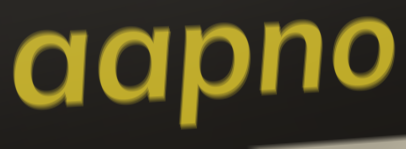
aapno